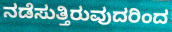
ನಡೆಸುತ್ತಿರುವುದರಿಂದ